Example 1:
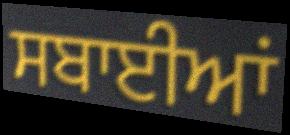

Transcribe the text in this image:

ਸਬਾਈਆਂ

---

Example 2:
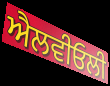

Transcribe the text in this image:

ਐਲਵੀਓਲੀ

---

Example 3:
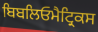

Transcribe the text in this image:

ਬਿਬਲਿਓਮੈਟ੍ਰਿਕਸ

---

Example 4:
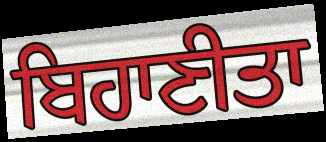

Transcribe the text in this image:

ਬਿਹਾਣੀਤਾ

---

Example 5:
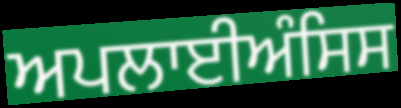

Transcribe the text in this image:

ਅਪਲਾਈਅੰਸਿਸ